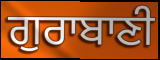
ਗੁਰਾਬਾਣੀ